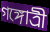
গঙ্গোত্রী